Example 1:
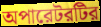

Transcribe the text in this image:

অপারেটরটির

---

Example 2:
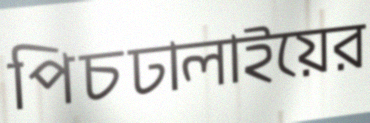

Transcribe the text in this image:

পিচঢালাইয়ের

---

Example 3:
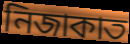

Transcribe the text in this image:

নিজাকাত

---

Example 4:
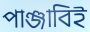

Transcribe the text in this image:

পাঞ্জাবিই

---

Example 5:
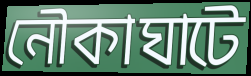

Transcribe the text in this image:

নৌকাঘাটে